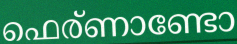
ഫെര്ണാണ്ടോ